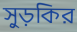
সুড়কির